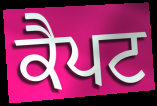
ਕੈਪਟ